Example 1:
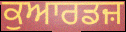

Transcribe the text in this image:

ਕੁਆਰਡਜ਼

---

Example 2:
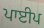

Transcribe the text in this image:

ਪਾਈਪ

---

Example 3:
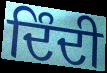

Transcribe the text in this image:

ਦਿੰਦੀ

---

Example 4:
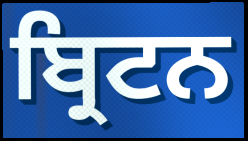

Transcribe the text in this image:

ਬ੍ਰਿਟਨ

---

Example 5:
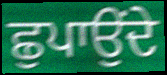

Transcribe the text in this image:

ਛੁਪਾਉਂਦੇ